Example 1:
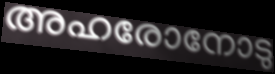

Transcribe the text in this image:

അഹരോനോടു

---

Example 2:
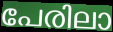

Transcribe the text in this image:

പേരിലാ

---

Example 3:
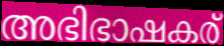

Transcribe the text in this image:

അഭിഭാഷകര്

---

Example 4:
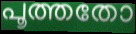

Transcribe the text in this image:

പൂത്തതോ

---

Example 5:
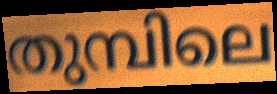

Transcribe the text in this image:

തുമ്പിലെ